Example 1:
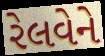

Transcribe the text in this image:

રેલવેને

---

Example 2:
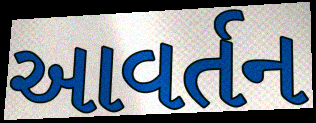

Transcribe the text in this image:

આવર્તન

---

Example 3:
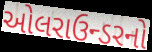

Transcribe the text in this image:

ઓલરાઉન્ડરનો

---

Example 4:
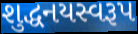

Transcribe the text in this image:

શુદ્ધનયસ્વરૂપ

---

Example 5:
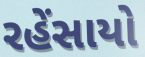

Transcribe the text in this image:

રહેંસાયો